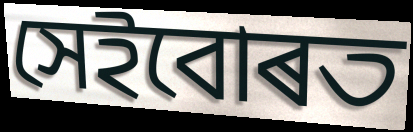
সেইবোৰত